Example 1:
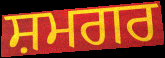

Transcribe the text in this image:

ਸ਼ਮਗਰ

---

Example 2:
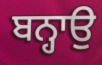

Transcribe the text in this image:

ਬਨ੍ਹਾਉ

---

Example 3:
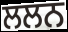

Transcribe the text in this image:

ਲਲਨ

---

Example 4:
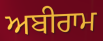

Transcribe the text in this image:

ਅਬੀਰਾਮ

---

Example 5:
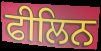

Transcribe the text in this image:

ਫੀਲਿਨ